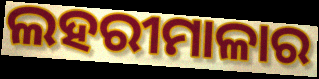
ଲହରୀମାଳାର